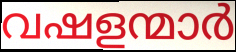
വഷളന്മാർ